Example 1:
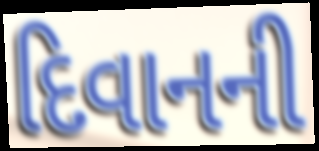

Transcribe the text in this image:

દિવાનની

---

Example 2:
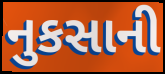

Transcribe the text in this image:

નુકસાની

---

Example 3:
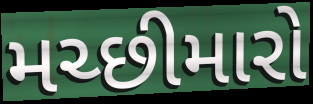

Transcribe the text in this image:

મચ્છીમારો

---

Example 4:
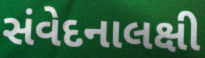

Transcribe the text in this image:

સંવેદનાલક્ષી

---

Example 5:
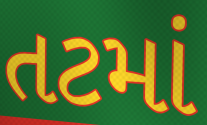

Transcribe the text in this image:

તટમાં